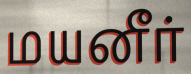
மயனீர்